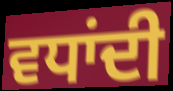
ਵਧਾਂਦੀ